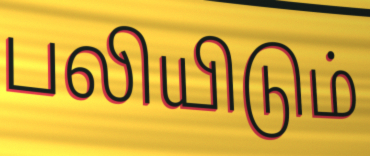
பலியிடும்